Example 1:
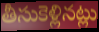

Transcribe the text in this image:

తీసుకెళ్లినట్లు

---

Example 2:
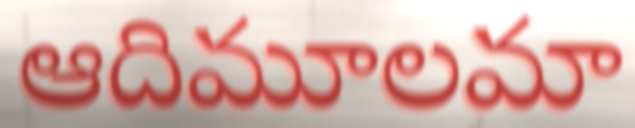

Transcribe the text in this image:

ఆదిమూలమా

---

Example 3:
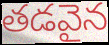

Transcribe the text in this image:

తడవైన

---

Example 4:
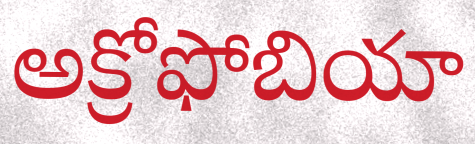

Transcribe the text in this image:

అక్రోఫోబియా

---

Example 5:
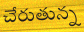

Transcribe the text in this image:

చేరుతున్న